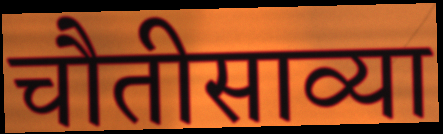
चौतीसाव्या